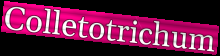
Colletotrichum